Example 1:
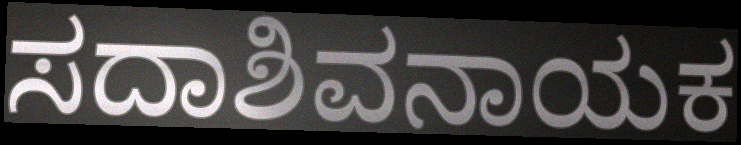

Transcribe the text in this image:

ಸದಾಶಿವನಾಯಕ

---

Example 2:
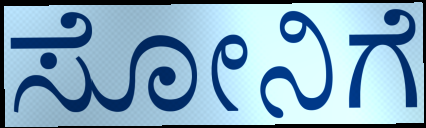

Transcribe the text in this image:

ಸೋನಿಗೆ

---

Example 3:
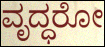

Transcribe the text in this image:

ವೃದ್ಧರೋ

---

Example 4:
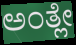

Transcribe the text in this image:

ಅಂತ್ಲೇ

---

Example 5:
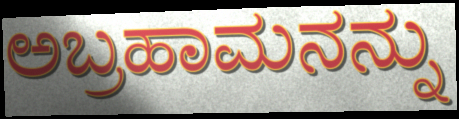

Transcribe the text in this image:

ಅಬ್ರಹಾಮನನ್ನು